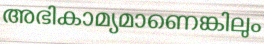
അഭികാമ്യമാണെങ്കിലും